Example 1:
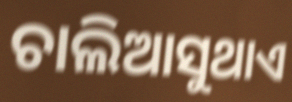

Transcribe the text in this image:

ଚାଲିଆସୁଥାଏ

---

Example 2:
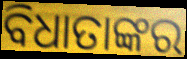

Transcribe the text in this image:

ବିଧାତାଙ୍କର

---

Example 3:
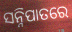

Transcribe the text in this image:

ସନ୍ନିପାତରେ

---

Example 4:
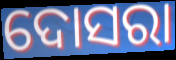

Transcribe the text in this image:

ଦୋସରା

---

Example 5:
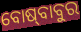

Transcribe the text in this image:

ବୋଷ୍‍ବାବୁର